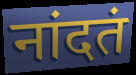
नांदतं